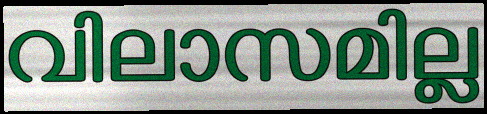
വിലാസമില്ല